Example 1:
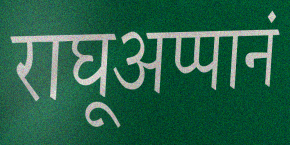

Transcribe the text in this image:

राघूअप्पानं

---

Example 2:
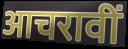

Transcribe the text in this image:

आचरावीं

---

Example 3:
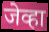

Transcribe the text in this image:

जेव्हा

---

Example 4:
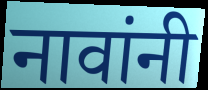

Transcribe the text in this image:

नावांनी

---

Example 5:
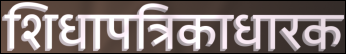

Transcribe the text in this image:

शिधापत्रिकाधारक